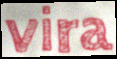
vira